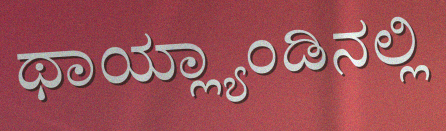
ಥಾಯ್ಲ್ಯಾಂಡಿನಲ್ಲಿ